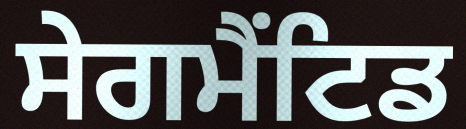
ਸੇਗਮੈਂਟਿਡ